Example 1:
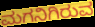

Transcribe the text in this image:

ಮಗನಿಗಿರುವ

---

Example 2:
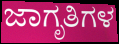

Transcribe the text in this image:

ಜಾಗೃತಿಗಳ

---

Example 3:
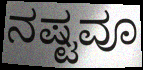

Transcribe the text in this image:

ನಷ್ಟವೂ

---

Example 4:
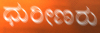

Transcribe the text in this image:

ಧುರೀಣರು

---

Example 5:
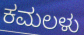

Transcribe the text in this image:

ಕಮಲಳು